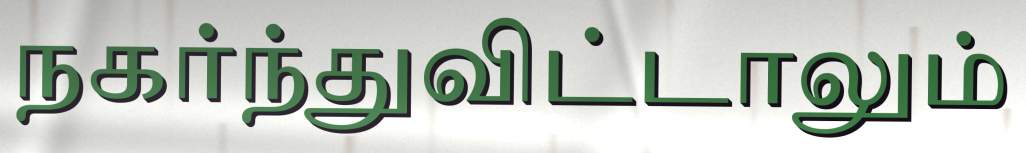
நகர்ந்துவிட்டாலும்